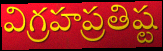
విగ్రహప్రతిష్ట